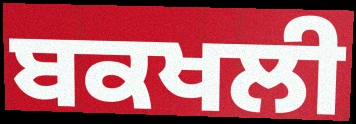
ਬਕਖਲੀ